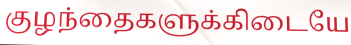
குழந்தைகளுக்கிடையே